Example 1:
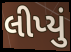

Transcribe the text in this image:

લીપ્યું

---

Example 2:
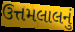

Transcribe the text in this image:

ઉત્તમલાલનું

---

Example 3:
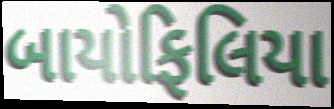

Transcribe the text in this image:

બાયોફિલિયા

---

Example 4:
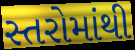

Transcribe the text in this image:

સ્તરોમાંથી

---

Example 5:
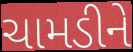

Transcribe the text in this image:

ચામડીને